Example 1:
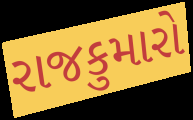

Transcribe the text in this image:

રાજકુમારો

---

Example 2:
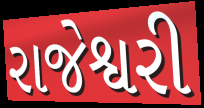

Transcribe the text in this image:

રાજેશ્વરી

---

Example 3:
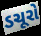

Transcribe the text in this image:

ડચૂરો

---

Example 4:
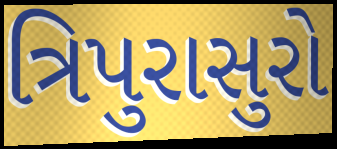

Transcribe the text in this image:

ત્રિપુરાસુરો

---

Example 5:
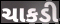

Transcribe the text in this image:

ચાકડી